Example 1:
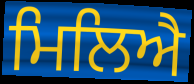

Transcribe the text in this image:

ਮਿਲਿਐ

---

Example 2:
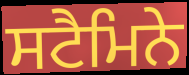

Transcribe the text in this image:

ਸਟੈਮਿਨੇ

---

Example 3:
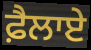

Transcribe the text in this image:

ਫ਼ੈਲਾਏ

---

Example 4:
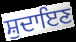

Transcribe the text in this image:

ਸ਼ੁਦਾਇਣ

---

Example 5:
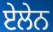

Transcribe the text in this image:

ਏਲੇਨ